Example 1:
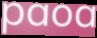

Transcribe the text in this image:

paoa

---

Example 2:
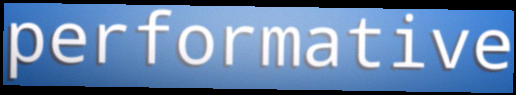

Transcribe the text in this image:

performative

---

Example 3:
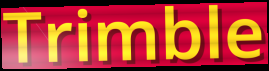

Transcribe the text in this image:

Trimble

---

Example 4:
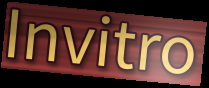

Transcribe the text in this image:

Invitro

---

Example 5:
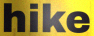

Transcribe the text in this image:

hike